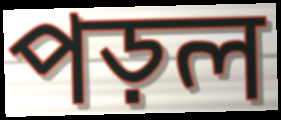
পড়্ল